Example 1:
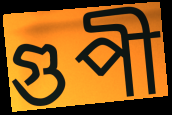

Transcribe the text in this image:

গুপী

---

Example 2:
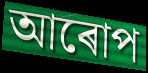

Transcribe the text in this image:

আৰোপ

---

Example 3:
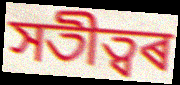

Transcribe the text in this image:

সতীত্বৰ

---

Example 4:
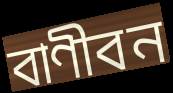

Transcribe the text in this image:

বাণীবন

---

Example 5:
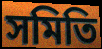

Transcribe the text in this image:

সমিতি